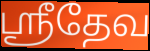
ஸ்ரீதேவ